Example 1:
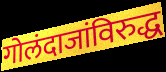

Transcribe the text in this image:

गोलंदाजांविरुद्ध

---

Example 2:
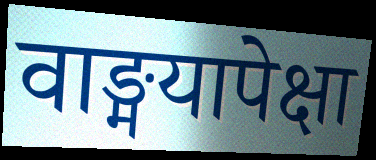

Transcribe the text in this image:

वाङ्मयापेक्षा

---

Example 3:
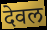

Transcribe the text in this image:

देवल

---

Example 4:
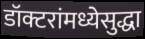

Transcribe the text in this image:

डॉक्टरांमध्येसुद्धा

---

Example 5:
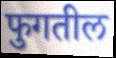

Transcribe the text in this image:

फुगतील